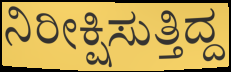
ನಿರೀಕ್ಷಿಸುತ್ತಿದ್ದ